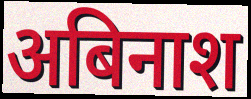
अबिनाश